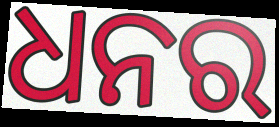
ଧନର